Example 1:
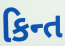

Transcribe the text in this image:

કિન્ત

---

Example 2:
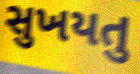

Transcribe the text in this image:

સુખયતુ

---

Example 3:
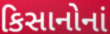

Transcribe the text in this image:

કિસાનોનાં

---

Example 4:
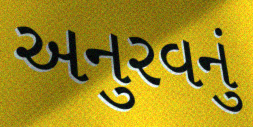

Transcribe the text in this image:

અનુરવનું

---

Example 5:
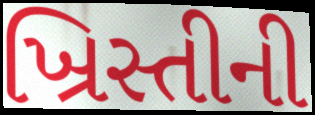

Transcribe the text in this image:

ખ્રિસ્તીની